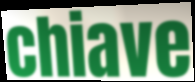
chiave